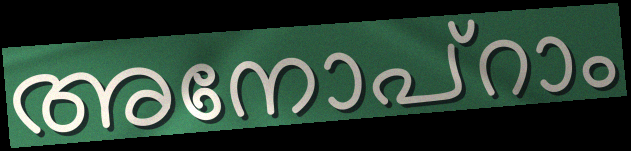
അനോപ്റാം